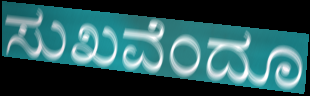
ಸುಖವೆಂದೂ